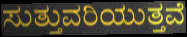
ಸುತ್ತುವರಿಯುತ್ತವೆ